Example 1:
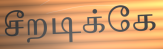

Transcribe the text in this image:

சீறடிக்கே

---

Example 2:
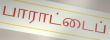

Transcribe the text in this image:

பாராட்டைப்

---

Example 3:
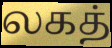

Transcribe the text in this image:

லகத்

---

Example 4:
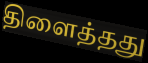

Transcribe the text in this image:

திளைத்தது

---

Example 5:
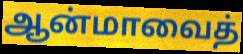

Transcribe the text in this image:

ஆன்மாவைத்